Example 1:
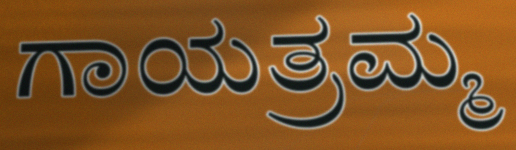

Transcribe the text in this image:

ಗಾಯತ್ರಮ್ಮ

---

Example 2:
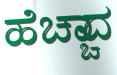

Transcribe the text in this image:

ಹೆಚ್ಚಾದ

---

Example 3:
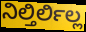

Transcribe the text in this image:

ನಿಲ್ತಿರ್ಲಿಲ್ಲ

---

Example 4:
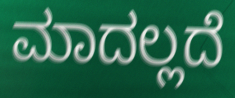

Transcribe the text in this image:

ಮಾದಲ್ಲದೆ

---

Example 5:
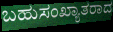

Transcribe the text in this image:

ಬಹುಸಂಖ್ಯಾತರಾದ